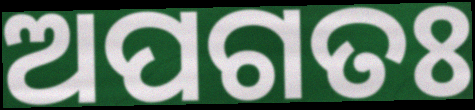
ଅପଗତଃ